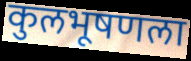
कुलभूषणला